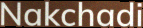
Nakchadi